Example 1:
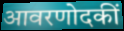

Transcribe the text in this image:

आवरणोदकीं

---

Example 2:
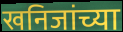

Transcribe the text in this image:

खनिजांच्या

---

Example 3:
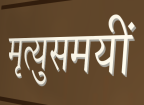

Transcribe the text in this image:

मृत्युसमयीं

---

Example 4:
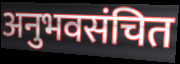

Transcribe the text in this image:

अनुभवसंचित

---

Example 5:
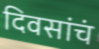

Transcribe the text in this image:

दिवसांचं